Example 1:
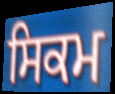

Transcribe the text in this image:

ਸਿਕਮ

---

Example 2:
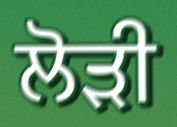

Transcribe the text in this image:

ਲੋੜੀ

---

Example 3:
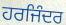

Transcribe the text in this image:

ਹਰਜਿੰਦਰ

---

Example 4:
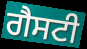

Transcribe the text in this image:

ਗੈਸਟੀ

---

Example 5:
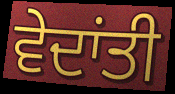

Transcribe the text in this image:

ਵੇਦਾਂਤੀ